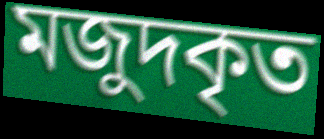
মজুদকৃত